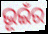
ଭୂଇଁର